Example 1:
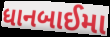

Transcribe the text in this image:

ધાનબાઈમા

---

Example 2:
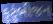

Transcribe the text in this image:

કુટુંબીજન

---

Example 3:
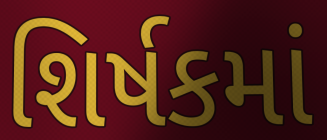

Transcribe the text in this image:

શિર્ષકમાં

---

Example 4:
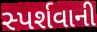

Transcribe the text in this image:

સ્પર્શવાની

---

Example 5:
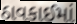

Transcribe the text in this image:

ઠાવકાઈમાં